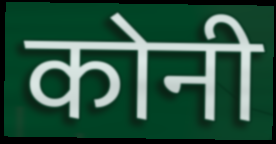
कोनी